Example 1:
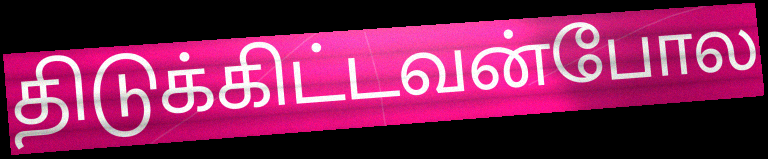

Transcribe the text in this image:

திடுக்கிட்டவன்போல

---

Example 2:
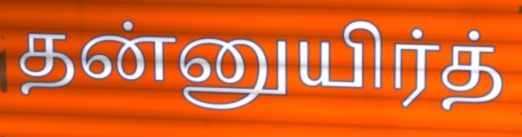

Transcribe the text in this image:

தன்னுயிர்த்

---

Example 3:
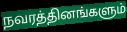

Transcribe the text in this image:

நவரத்தினங்களும்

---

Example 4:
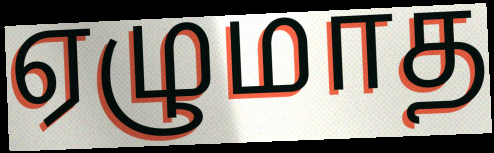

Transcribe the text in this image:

ஏழுமாத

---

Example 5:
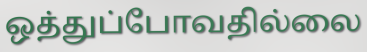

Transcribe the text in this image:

ஒத்துப்போவதில்லை